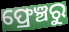
ଫ୍ରେଞ୍ଚରୁ